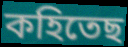
কহিতেছ